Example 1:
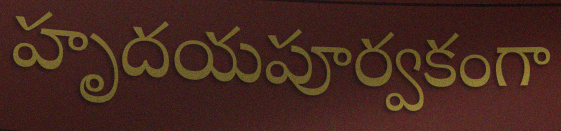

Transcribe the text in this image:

హృదయపూర్వకంగా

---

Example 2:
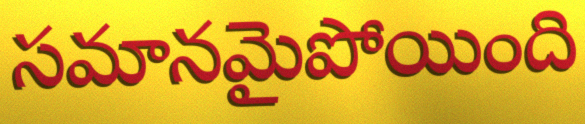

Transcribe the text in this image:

సమానమైపోయింది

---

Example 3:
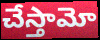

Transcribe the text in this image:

చేస్తామో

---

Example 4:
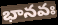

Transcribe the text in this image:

భానవః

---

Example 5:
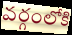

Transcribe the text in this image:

వర్గంలోకి